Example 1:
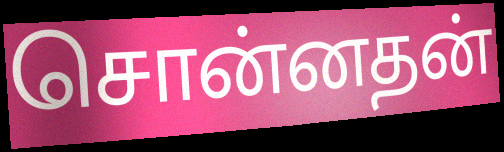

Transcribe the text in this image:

சொன்னதன்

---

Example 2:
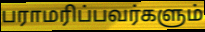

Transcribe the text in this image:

பராமரிப்பவர்களும்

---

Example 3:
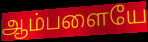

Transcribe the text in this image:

ஆம்பளையே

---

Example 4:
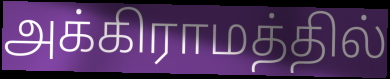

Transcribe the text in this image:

அக்கிராமத்தில்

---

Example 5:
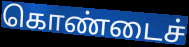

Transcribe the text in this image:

கொண்டைச்